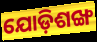
ଯୋଡ଼ିଶଙ୍ଖ